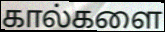
கால்களை